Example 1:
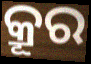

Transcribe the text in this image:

କ୍ରୂର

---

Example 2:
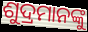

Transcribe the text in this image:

ଶୁଦ୍ରମାନଙ୍କୁ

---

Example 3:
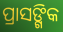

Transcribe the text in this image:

ପ୍ରାସଙ୍ଗିକ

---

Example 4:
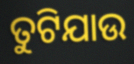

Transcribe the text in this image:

ତୁଟିଯାଉ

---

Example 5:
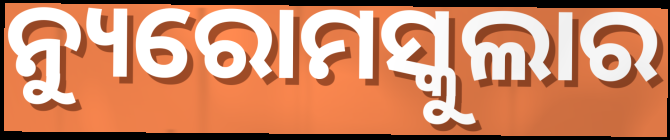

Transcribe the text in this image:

ନ୍ୟୁରୋମସ୍କୁଲାର